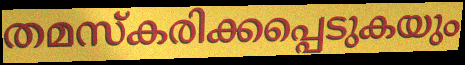
തമസ്കരിക്കപ്പെടുകയും